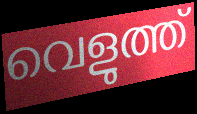
വെളുത്ത്